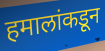
हमालांकडून